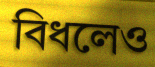
বিধলেও